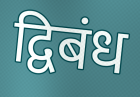
द्विबंध